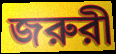
জরুরী